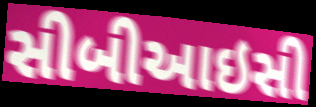
સીબીઆઇસી